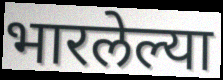
भारलेल्या